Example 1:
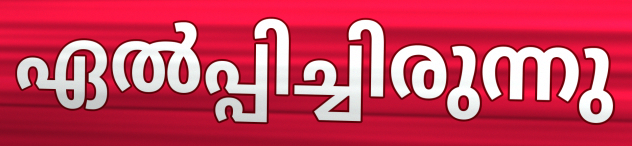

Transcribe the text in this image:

ഏൽപ്പിച്ചിരുന്നു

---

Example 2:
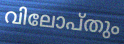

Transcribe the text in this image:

വിലോപ്തും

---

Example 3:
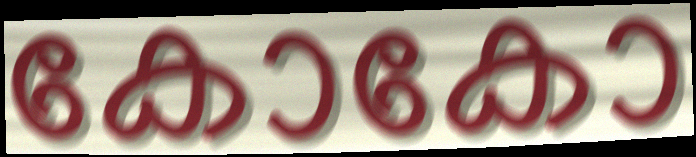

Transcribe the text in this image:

കോകോ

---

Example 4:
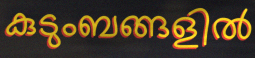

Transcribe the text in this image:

കുടുംബങ്ങളിൽ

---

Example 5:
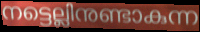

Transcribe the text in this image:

നട്ടെല്ലിനുണ്ടാകുന്ന